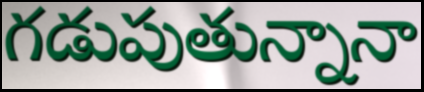
గడుపుతున్నానా